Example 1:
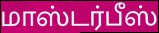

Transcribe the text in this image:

மாஸ்டர்பீஸ்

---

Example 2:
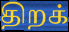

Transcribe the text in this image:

திறக்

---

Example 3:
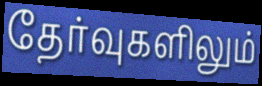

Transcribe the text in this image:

தேர்வுகளிலும்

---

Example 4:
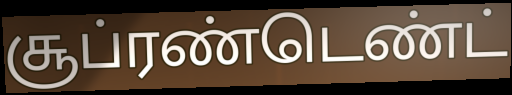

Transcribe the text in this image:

சூப்ரண்டெண்ட்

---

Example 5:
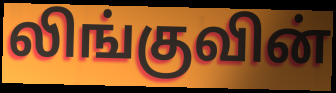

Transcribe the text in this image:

லிங்குவின்